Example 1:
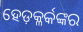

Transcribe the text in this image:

ହେଡ଼କ୍ଳର୍କଙ୍କର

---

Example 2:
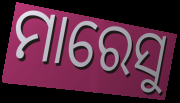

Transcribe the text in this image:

ମାରେସୁ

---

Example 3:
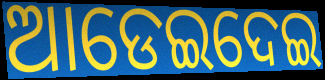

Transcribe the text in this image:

ଆଡେଇଦେଇ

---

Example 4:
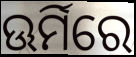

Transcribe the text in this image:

ଊର୍ମିରେ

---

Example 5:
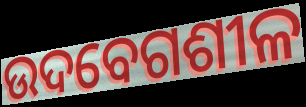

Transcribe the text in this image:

ଉଦବେଗଶୀଳ